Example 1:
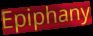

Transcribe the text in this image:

Epiphany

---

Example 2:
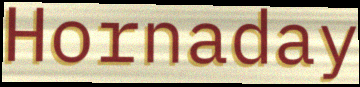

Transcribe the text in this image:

Hornaday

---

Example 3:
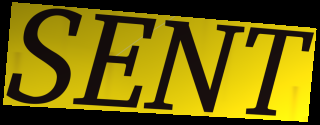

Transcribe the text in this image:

SENT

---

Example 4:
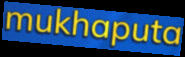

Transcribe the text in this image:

mukhaputa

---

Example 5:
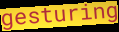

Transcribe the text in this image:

gesturing